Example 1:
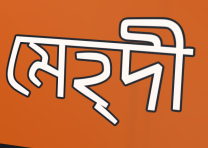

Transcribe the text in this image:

মেহ্দী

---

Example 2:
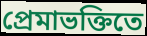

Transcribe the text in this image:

প্রেমাভক্তিতে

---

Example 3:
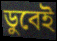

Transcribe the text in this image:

ডুবেই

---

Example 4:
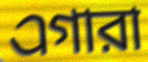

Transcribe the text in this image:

এগারা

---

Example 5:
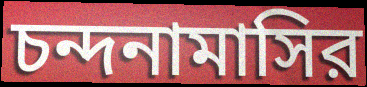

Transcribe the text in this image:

চন্দনামাসির